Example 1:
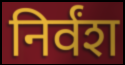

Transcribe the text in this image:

निर्वंश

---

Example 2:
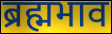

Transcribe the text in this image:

ब्रह्मभाव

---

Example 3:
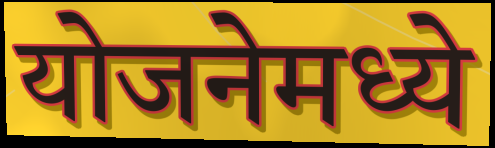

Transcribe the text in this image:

योजनेमध्ये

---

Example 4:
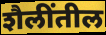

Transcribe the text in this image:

शैलींतील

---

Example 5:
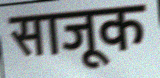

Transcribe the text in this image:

साजूक